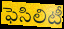
ఫెసిలిటీ